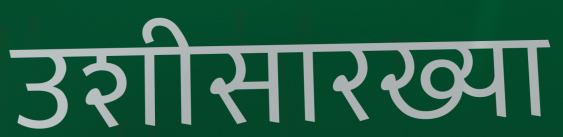
उशीसारख्या